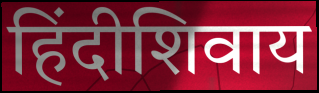
हिंदीशिवाय